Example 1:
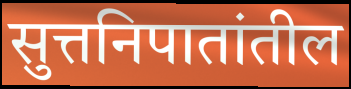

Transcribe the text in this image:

सुत्तनिपातांतील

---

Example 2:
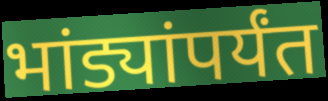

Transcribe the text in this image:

भांड्यांपर्यंत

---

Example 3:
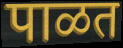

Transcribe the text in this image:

पाळत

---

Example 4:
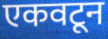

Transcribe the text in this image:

एकवटून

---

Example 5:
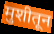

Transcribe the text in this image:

मुशीतून